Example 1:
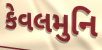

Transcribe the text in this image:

કેવલમુનિ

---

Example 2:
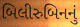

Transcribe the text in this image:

બિલીરુબિનનું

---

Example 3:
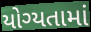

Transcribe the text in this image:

યોગ્યતામાં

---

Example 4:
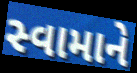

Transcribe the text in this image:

સ્વામાને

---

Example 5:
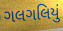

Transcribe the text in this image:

ગલગલિયું